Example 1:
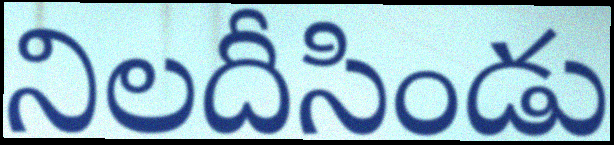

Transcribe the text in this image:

నిలదీసిండు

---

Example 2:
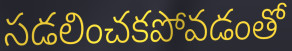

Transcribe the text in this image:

సడలించకపోవడంతో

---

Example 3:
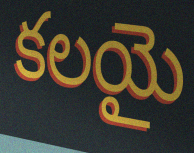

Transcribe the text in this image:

కలయై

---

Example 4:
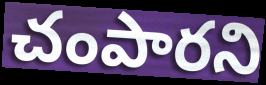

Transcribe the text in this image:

చంపారని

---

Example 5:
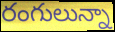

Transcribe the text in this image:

రంగులున్నా